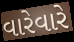
વારેવારે